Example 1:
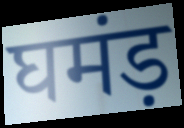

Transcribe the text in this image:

घमंड़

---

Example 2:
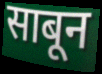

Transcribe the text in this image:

साबून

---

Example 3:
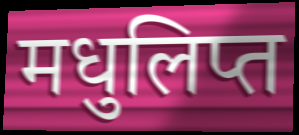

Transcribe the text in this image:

मधुलिप्त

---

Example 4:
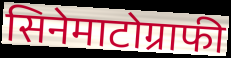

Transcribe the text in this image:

सिनेमाटोग्राफी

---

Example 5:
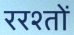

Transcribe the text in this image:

ररश्तों